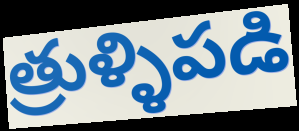
త్రుళ్ళిపడి